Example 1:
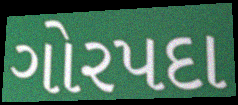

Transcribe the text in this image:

ગોરપદા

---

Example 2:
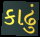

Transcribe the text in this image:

કાઢું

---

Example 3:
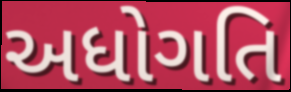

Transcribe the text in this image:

અધોગતિ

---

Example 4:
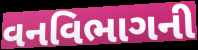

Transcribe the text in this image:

વનવિભાગની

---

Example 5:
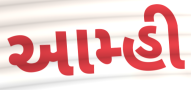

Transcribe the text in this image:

આમ્હી